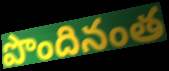
పొందినంత